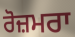
ਰੋਜ਼ਮਰਾ